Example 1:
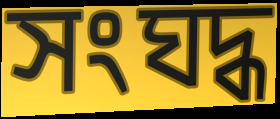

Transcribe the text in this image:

সংঘদ্ধ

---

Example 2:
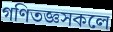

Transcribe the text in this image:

গণিতজ্ঞসকলে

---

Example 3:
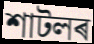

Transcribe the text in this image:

শাটলৰ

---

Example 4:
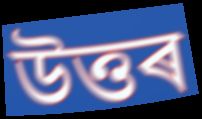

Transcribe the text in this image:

উত্তৰ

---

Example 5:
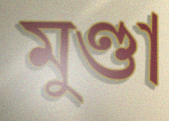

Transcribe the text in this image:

মুণ্ডা